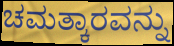
ಚಮತ್ಕಾರವನ್ನು